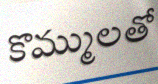
కొమ్ములతో